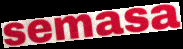
semasa